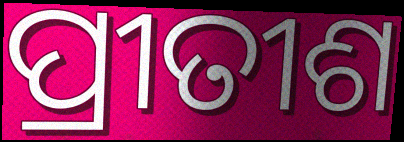
ପ୍ରୀତୀଶ